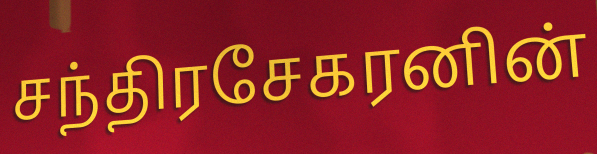
சந்திரசேகரனின்